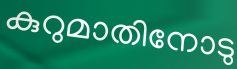
കുറുമാതിനോടു